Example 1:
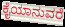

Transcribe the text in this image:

ಕೈಯಾನುವರೆ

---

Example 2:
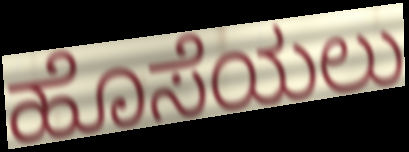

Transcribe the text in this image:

ಹೊಸೆಯಲು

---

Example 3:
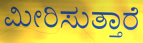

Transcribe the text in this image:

ಮೀರಿಸುತ್ತಾರೆ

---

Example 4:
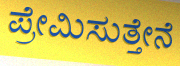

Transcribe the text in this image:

ಪ್ರೇಮಿಸುತ್ತೇನೆ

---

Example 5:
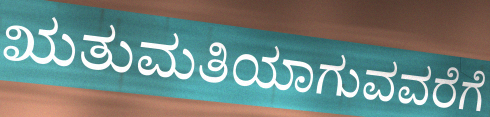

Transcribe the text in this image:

ಋತುಮತಿಯಾಗುವವರೆಗೆ